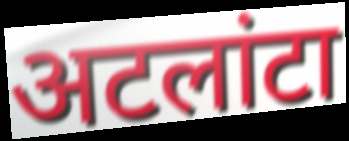
अटलांटा